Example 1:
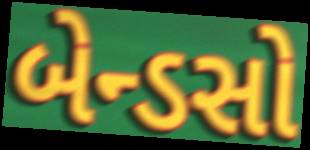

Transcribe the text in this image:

બેન્ડસો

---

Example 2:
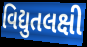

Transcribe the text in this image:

વિદ્યુતલક્ષી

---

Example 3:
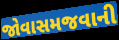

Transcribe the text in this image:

જોવાસમજવાની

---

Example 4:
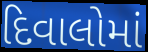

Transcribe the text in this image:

દિવાલોમાં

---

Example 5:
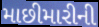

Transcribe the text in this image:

માછીમારીની